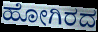
ಹೋಗಿರದ